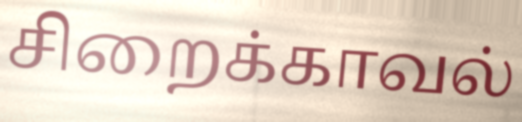
சிறைக்காவல்